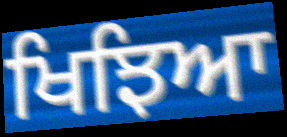
ਖਿਝਿਆ